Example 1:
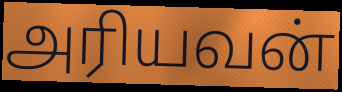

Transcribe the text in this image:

அரியவன்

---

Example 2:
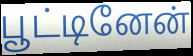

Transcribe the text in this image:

பூட்டினேன்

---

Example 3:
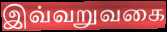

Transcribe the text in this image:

இவ்வறுவகை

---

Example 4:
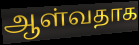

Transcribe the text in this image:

ஆள்வதாக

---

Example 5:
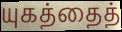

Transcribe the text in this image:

யுகத்தைத்